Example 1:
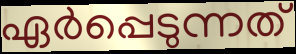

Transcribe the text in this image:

ഏർപ്പെടുന്നത്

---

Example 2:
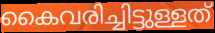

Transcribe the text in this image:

കൈവരിച്ചിട്ടുള്ളത്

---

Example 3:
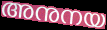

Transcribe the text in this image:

അനുനയ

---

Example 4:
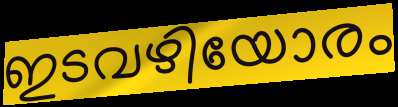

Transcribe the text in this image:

ഇടവഴിയോരം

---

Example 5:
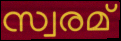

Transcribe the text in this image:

സ്വരമ്